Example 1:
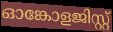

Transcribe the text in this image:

ഓങ്കോളജിസ്റ്റ്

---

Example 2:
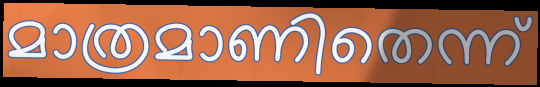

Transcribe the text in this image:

മാത്രമാണിതെന്ന്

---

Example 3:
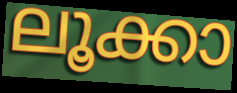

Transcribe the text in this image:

ലൂക്കാ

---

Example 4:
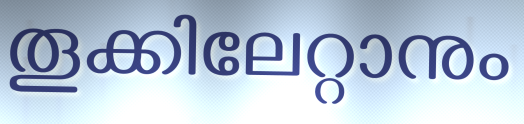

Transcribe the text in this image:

തൂക്കിലേറ്റാനും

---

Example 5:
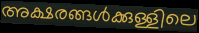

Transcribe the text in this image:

അക്ഷരങ്ങൾക്കുള്ളിലെ